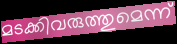
മടക്കിവരുത്തുമെന്ന്